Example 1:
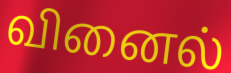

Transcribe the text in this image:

வினைல்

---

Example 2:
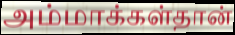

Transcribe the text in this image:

அம்மாக்கள்தான்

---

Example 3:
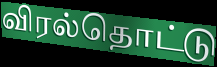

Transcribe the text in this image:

விரல்தொட்டு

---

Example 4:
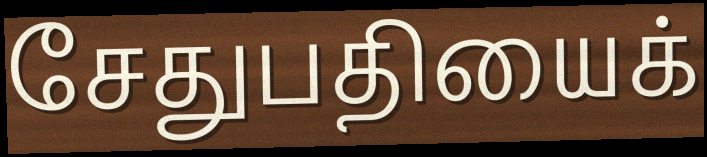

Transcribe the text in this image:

சேதுபதியைக்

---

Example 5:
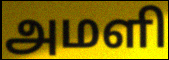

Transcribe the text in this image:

அமளி